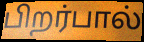
பிறர்பால்